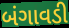
બંગાવડી